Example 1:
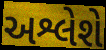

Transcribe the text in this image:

અશ્લેશે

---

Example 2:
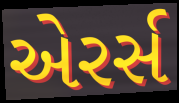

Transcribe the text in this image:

એરર્સ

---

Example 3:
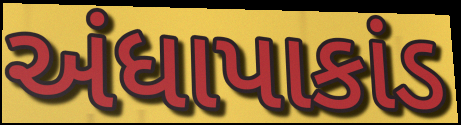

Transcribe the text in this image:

અંધાપાકાંડ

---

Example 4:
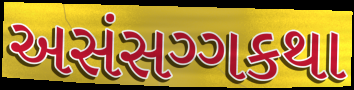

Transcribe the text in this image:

અસંસગ્ગકથા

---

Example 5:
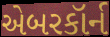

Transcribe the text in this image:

એબરકૉર્ન